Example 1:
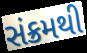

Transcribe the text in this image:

સંક્રમથી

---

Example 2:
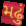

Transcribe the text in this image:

મઢું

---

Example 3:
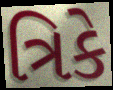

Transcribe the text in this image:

ત્રિકે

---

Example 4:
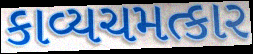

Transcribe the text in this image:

કાવ્યચમત્કાર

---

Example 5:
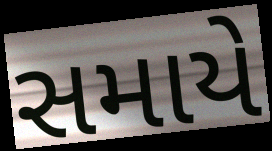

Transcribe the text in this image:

સમાયે